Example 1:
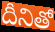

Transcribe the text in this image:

దీనితో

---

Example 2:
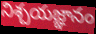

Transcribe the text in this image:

నిశ్చయజ్ఞానం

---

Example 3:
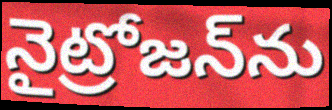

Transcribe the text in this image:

నైట్రోజన్‌ను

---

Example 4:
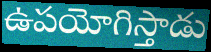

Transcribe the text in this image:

ఉపయోగిస్తాడు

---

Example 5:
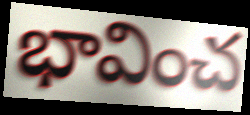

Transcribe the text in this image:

భావించ